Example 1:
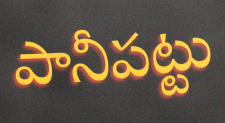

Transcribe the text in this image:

పానీపట్టు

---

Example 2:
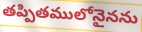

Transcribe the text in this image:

తప్పితములోనైనను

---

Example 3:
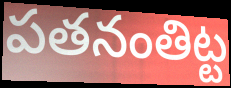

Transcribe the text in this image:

పతనంతిట్ట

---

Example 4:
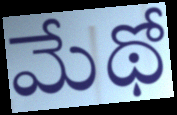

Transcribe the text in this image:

మేథో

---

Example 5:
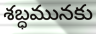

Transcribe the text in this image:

శబ్ధమునకు